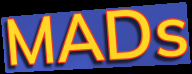
MADs